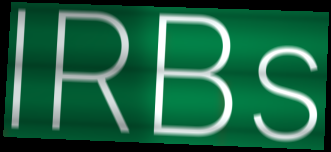
IRBs